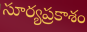
సూర్యప్రకాశం